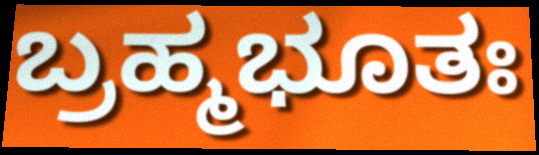
ಬ್ರಹ್ಮಭೂತಃ